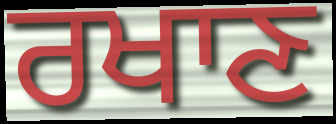
ਰਖਾਣ